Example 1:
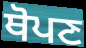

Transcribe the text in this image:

ਥੋਪਣ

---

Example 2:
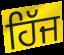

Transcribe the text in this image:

ਹਿੱਜ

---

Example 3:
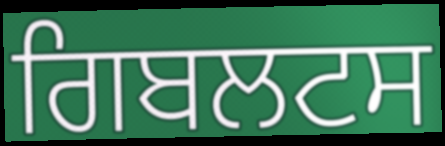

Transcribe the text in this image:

ਗਿਬਲਟਸ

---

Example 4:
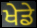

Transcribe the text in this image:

ਖੇਡੇ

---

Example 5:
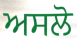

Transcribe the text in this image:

ਅਸਲੋ